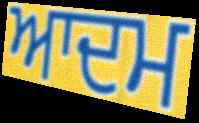
ਆਦਮ